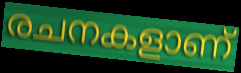
രചനകളാണ്